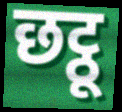
छट्ठू